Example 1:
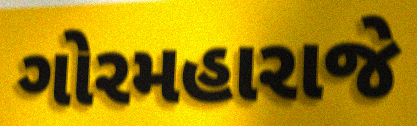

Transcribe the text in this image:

ગોરમહારાજે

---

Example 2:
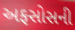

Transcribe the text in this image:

અફસોસની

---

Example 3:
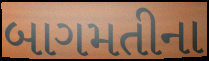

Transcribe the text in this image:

બાગમતીના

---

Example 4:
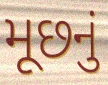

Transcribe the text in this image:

મૂછનું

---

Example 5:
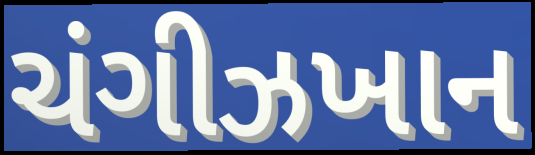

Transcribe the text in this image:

ચંગીઝખાન